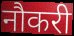
नौकरी